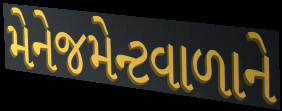
મેનેજમેન્ટવાળાને